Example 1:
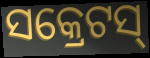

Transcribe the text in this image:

ସକ୍ରେଟସ୍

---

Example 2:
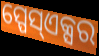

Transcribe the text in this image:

ସ୍ପେସ୍ଏକ୍ସର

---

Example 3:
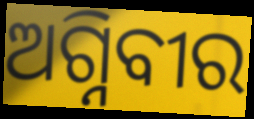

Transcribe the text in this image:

ଅଗ୍ନିବୀର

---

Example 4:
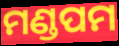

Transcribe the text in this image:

ମଣ୍ଡପମ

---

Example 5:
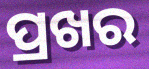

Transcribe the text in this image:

ପ୍ରଖର